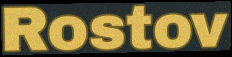
Rostov